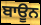
ਬਾਊਨ